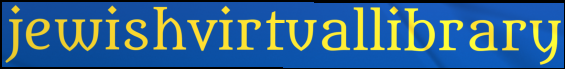
jewishvirtuallibrary